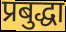
प्रबुद्धा